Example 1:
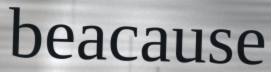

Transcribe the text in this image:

beacause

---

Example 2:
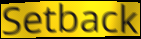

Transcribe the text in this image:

Setback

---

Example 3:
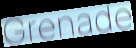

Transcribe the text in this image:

Grenade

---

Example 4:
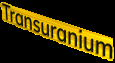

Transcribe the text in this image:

Transuranium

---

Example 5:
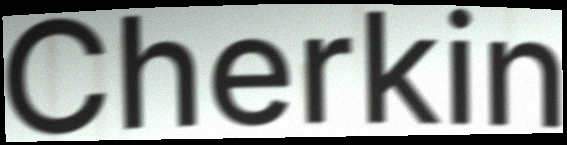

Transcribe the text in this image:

Cherkin